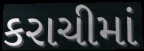
કરાચીમાં